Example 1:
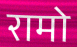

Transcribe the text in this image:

रामो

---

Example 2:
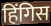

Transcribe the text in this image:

हिंगिस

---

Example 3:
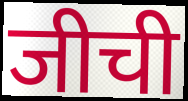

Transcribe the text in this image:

जीची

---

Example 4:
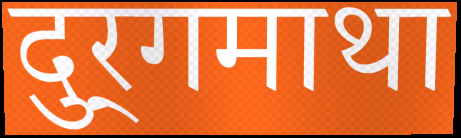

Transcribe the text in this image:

दुर्गमाथा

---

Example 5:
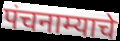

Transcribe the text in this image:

पंचनाम्याचे